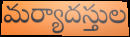
మర్యాదస్తుల